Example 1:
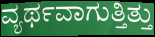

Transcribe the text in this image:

ವ್ಯರ್ಥವಾಗುತ್ತಿತ್ತು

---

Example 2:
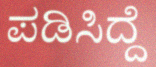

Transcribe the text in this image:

ಪಡಿಸಿದ್ದೆ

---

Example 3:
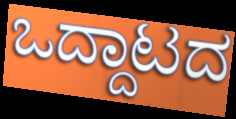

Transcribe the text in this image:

ಒದ್ದಾಟದ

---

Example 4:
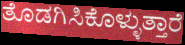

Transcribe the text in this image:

ತೊಡಗಿಸಿಕೊಳ್ಳುತ್ತಾರೆ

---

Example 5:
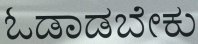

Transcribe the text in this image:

ಓಡಾಡಬೇಕು